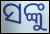
ସଙ୍କୁ